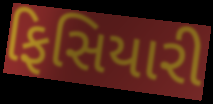
ફિસિયારી